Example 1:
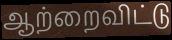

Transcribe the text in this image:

ஆற்றைவிட்டு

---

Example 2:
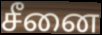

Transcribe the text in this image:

சீனை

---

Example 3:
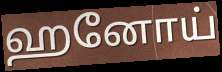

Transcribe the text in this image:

ஹனோய்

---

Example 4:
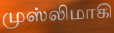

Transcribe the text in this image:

முஸ்லிமாகி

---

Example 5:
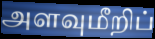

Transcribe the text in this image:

அளவுமீறிப்